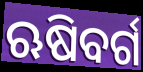
ଋଷିବର୍ଗ